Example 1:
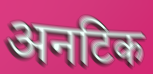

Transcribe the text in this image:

अनटिक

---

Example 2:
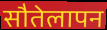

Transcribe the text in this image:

सौतेलापन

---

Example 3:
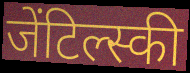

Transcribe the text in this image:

जेंटिल्स्की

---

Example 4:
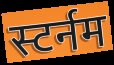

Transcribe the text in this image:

स्टर्नम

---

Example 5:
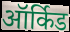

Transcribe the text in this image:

ऑर्किड